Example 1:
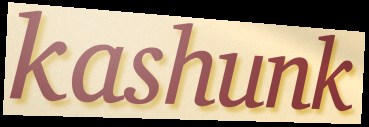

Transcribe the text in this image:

kashunk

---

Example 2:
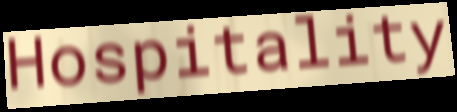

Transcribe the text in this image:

Hospitality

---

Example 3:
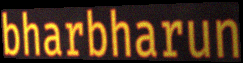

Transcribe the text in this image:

bharbharun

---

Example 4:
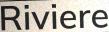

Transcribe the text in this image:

Riviere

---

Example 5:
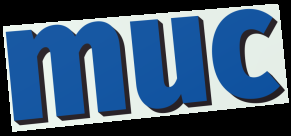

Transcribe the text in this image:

muc